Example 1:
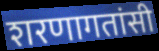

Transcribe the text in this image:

शरणागतांसी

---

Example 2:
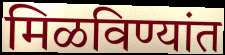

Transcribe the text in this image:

मिळविण्यांत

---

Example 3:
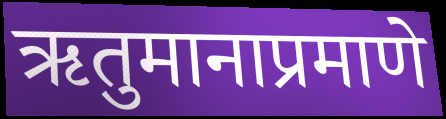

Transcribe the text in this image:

ऋतुमानाप्रमाणे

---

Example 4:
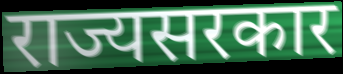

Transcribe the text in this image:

राज्यसरकार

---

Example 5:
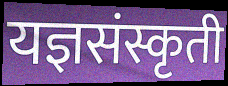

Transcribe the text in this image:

यज्ञसंस्कृती